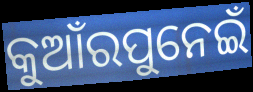
କୁଆଁରପୁନେଇଁ